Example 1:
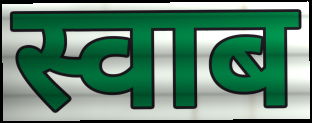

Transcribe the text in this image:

स्वाब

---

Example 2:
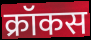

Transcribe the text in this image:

क्रॉकस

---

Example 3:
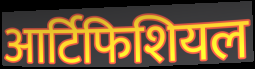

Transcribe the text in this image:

आर्टिफिशियल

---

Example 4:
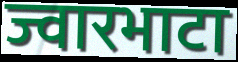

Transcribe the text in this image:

ज्वारभाटा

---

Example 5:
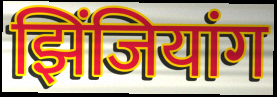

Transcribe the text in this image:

झिंजियांग